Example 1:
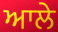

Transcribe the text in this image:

ਆਲੇ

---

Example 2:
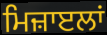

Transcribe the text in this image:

ਮਿਜ਼ਾੲਲਾਂ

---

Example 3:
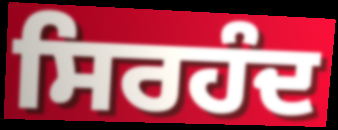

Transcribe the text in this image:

ਸਿਰਹੰਦ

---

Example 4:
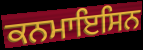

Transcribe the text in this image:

ਕਨਮਾਇਸਿਨ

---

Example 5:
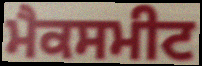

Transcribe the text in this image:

ਮੈਕਸਮੀਟ